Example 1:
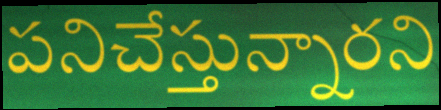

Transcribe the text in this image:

పనిచేస్తున్నారని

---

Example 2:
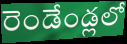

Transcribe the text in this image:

రెండేండ్లలో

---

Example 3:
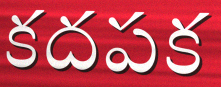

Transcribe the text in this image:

కదపక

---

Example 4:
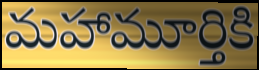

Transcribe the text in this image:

మహామూర్తికి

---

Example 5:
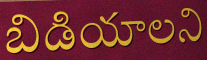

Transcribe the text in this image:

బిడియాలని